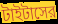
টাইটাসের